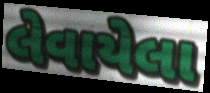
લેવાયેલા